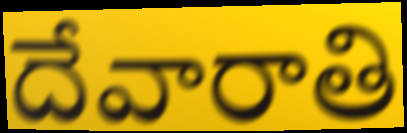
దేవారాతి